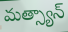
మత్స్యాన్